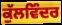
ਕੁੱਲਵਿੰਦਰ